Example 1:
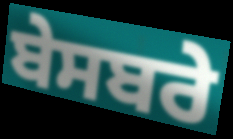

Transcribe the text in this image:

ਬੇਸਬਰੇ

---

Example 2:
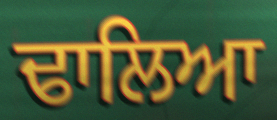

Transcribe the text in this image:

ਢਾਲਿਆ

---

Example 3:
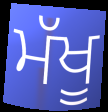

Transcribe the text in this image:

ਮੱਖੂ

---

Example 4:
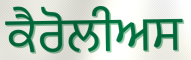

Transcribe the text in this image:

ਕੈਰੋਲੀਅਸ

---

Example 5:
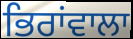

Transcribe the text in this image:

ਭਿਰਾਂਵਾਲਾ